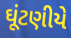
ઘૂંટણીયે